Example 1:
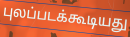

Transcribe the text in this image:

புலப்படக்கூடியது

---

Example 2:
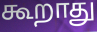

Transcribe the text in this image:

கூறாது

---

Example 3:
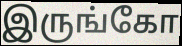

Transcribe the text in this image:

இருங்கோ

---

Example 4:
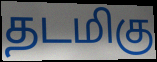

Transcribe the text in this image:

தடமிகு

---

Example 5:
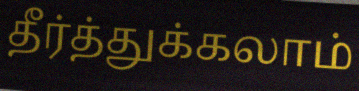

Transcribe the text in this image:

தீர்த்துக்கலாம்